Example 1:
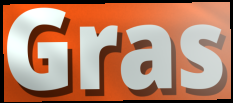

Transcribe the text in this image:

Gras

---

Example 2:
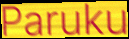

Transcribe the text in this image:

Paruku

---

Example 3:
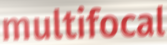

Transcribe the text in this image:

multifocal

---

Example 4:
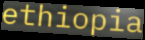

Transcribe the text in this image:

ethiopia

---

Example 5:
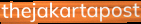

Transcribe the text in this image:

thejakartapost